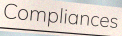
Compliances